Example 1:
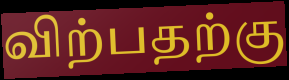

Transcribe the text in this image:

விற்பதற்கு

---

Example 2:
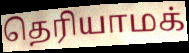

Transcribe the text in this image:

தெரியாமக்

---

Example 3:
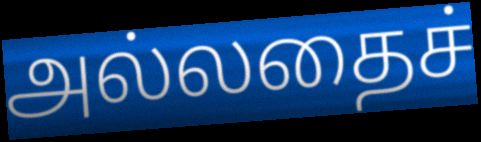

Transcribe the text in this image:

அல்லதைச்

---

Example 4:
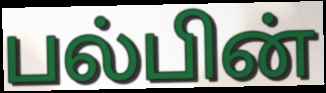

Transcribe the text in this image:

பல்பின்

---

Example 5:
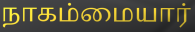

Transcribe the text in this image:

நாகம்மையார்